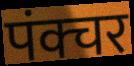
पंक्चर